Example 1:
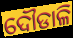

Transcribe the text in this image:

ଦୌଡାଳି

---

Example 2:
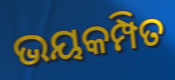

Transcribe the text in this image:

ଭୟକମ୍ପିତ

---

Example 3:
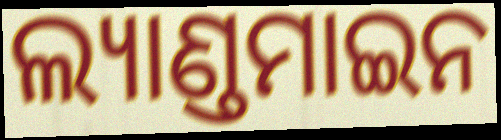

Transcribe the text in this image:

ଲ୍ୟାଣ୍ଡମାଇନ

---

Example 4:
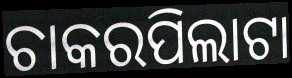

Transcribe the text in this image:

ଚାକରପିଲାଟା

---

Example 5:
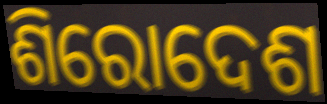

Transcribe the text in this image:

ଶିରୋଦେଶ